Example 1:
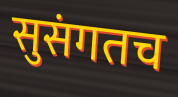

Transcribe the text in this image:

सुसंगतच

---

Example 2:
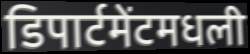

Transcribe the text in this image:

डिपार्टमेंटमधली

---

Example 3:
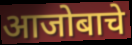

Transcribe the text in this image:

आजोबाचे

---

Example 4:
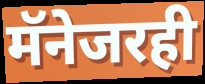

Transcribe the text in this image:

मॅनेजरही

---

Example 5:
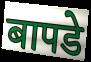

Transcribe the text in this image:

बापडे